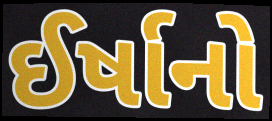
ઈર્ષાનો